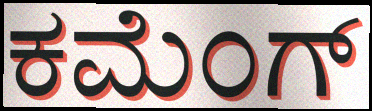
ಕಮೆಂಗ್